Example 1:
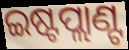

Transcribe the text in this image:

ଇଷ୍ଟପ୍ଲାଣ୍ଟ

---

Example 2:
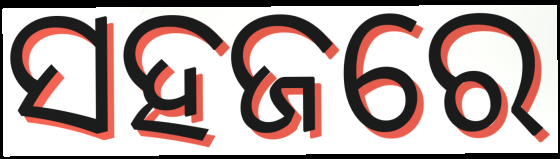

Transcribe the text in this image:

ସହଜରେ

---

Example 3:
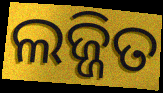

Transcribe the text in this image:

ଲଜ୍ଜିତ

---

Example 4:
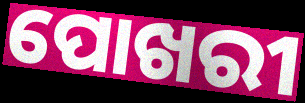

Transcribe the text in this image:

ପୋଖରୀ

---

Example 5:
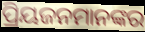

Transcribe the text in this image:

ପ୍ରିୟଜନମାନଙ୍କର